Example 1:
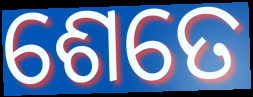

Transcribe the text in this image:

ଶେତେ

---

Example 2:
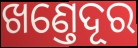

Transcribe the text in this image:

ଖଣ୍ତେଦୂର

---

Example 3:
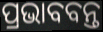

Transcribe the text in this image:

ପ୍ରଭାବବନ୍ତ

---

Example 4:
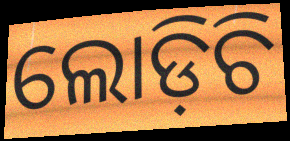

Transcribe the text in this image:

ଲୋଡ଼ିଚି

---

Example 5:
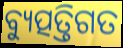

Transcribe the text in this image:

ବ୍ୟୁତ୍ପତ୍ତିଗତ